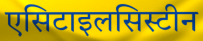
एसिटाइलसिस्टीन